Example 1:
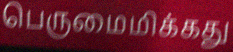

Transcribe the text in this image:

பெருமைமிக்கது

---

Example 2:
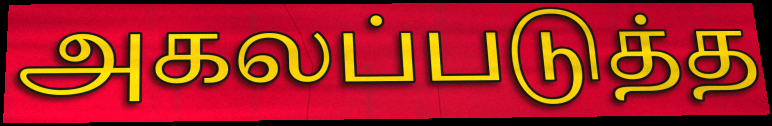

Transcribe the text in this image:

அகலப்படுத்த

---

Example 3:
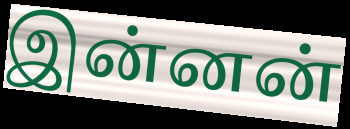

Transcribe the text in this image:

இன்னன்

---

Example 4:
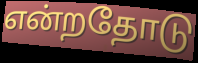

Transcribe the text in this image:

என்றதோடு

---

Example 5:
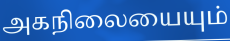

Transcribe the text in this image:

அகநிலையையும்